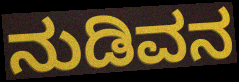
ನುಡಿವನ